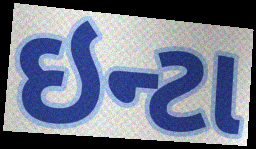
ઇન્ટા